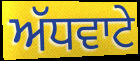
ਅੱਧਵਾਟੇ